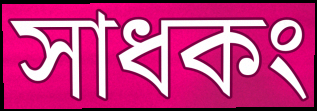
সাধকং